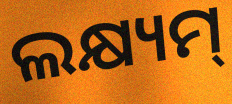
ଲକ୍ଷ୍ୟମ୍